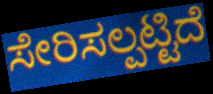
ಸೇರಿಸಲ್ಪಟ್ಟಿದೆ